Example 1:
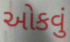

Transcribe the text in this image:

ઓકવું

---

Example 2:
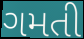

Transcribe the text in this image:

ગમતી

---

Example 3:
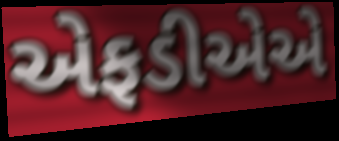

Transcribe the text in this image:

એફડીએએ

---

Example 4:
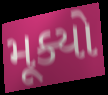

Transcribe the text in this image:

મૂક્યો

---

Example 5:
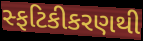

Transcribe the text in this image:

સ્ફટિકીકરણથી